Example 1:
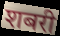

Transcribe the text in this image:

शबरी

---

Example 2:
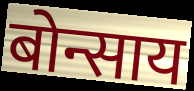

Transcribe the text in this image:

बोन्साय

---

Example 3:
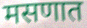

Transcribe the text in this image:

मसणात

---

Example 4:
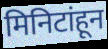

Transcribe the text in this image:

मिनिटांहून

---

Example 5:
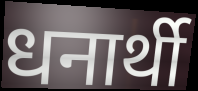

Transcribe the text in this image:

धनार्थी